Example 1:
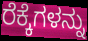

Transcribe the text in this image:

ರೆಕ್ಕೆಗಳನ್ನು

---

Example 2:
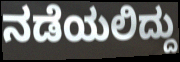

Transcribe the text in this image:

ನಡೆಯಲಿದ್ದು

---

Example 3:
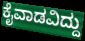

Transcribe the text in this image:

ಕೈವಾಡವಿದ್ದು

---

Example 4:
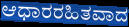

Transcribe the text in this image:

ಆಧಾರರಹಿತವಾದ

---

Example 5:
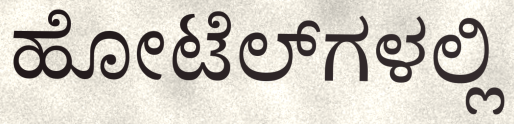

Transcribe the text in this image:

ಹೋಟೆಲ್‍ಗಳಲ್ಲಿ